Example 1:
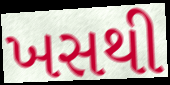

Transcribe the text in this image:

ખસથી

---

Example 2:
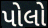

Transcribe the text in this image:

પોલો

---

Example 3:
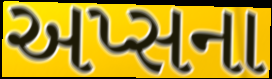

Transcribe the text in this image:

અપ્સના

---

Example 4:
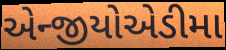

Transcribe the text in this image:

એન્જીયોએડીમા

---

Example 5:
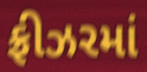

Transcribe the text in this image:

ફ્રીઝરમાં